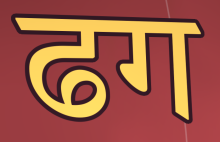
ढग